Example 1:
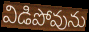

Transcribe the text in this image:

విడిపోవును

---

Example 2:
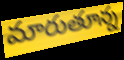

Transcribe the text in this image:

మారుతూన్న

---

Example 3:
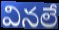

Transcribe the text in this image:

వినలే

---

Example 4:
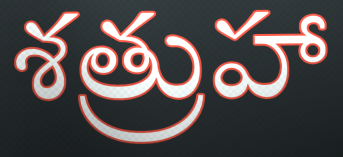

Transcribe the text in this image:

శత్రుహా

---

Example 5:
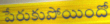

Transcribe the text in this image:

పేరుకుపోయిందో